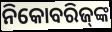
ନିକୋବରିଜ୍‍ଙ୍କ